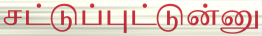
சட்டுப்புட்டுன்னு